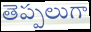
తెప్పలుగా